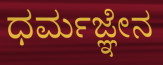
ಧರ್ಮಜ್ಞೇನ